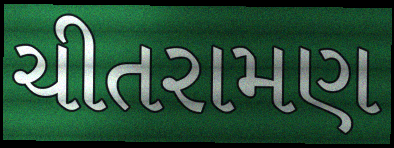
ચીતરામણ